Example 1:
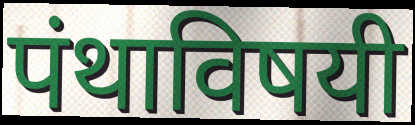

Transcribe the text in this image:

पंथाविषयी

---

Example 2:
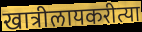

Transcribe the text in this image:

खात्रीलायकरीत्या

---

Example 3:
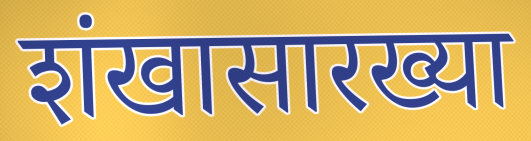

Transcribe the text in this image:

शंखासारख्या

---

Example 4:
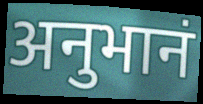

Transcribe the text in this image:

अनुभानं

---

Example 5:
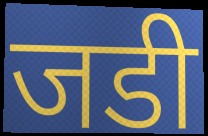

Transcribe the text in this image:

जडी